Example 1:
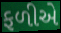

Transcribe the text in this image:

ફળીએ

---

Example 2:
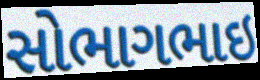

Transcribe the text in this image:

સોભાગભાઇ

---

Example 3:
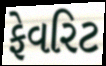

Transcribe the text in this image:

ફેવરિટ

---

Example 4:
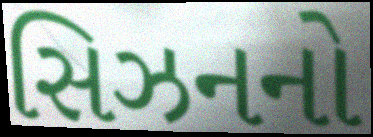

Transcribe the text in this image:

સિઝનનો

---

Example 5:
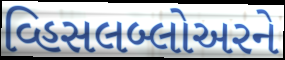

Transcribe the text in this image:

વ્હિસલબ્લોઅરને